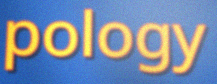
pology